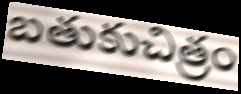
బతుకుచిత్రం